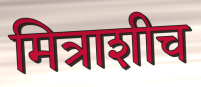
मित्राशीच